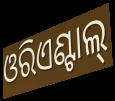
ଓରିଏଣ୍ଟାଲ୍